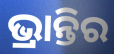
ଭ୍ରାନ୍ତିର